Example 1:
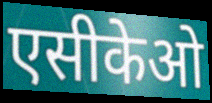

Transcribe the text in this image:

एसीकेओ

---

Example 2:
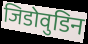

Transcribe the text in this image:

जिडोवुडिन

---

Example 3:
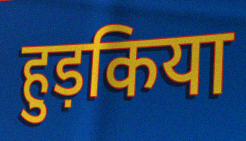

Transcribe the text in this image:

हुड़किया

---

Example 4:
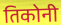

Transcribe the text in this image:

तिकोनी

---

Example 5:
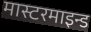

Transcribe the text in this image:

मास्टरमाइन्ड